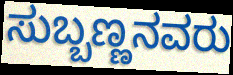
ಸುಬ್ಬಣ್ಣನವರು